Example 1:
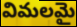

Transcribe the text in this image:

విమలమై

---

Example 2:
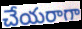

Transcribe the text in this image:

చేయరాగా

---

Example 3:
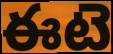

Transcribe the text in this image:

ఈటె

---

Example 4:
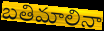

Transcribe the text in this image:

బతిమాలినా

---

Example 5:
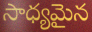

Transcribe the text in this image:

సాధ్యమైన